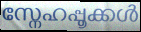
സ്നേഹപ്പൂക്കൾ